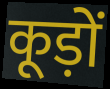
कूड़ों